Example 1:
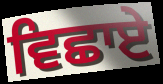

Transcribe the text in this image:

ਵਿਛਾਏ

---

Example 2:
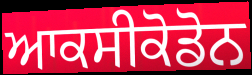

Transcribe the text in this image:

ਆਕਸੀਕੋਡੋਨ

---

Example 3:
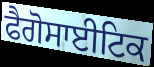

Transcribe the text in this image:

ਫੈਗੋਸਾਈਟਿਕ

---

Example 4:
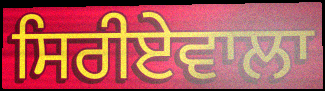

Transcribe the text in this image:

ਸਿਰੀਏਵਾਲਾ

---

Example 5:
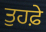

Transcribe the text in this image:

ਤੁਹਫ਼ੇ